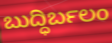
ಬುದ್ಧಿರ್ಬಲಂ